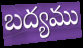
బద్యము